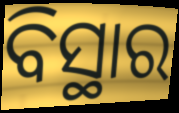
ବିସ୍ଥାର